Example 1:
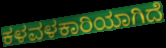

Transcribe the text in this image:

ಕಳವಳಕಾರಿಯಾಗಿದೆ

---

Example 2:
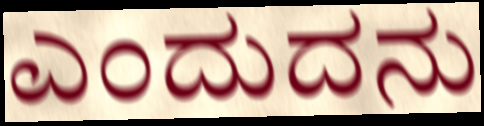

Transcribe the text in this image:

ಎಂದುದನು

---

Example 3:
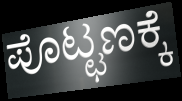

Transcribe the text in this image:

ಪೊಟ್ಟಣಕ್ಕೆ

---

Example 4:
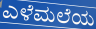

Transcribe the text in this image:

ಎಳೆಮಲೆಯ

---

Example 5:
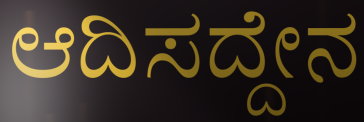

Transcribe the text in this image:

ಆದಿಸದ್ದೇನ